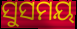
ସୁସମୟ